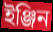
ইঞ্জিন